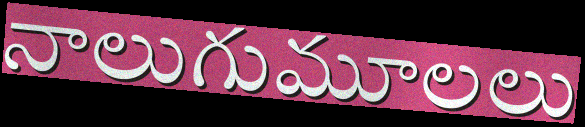
నాలుగుమూలలు